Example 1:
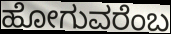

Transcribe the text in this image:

ಹೋಗುವರೆಂಬ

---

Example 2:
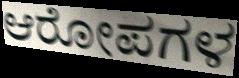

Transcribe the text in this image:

ಆರೋಪಗಳ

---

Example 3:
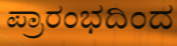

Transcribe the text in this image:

ಪ್ರಾರಂಭದಿಂದ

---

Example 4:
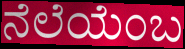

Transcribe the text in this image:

ನೆಲೆಯೆಂಬ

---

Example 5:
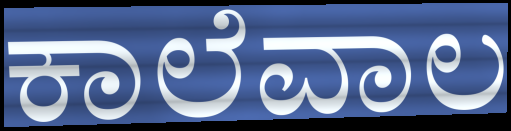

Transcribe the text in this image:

ಕಾಲೆವಾಲ